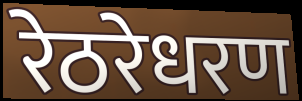
रेठरेधरण